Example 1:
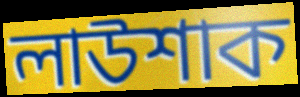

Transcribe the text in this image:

লাউশাক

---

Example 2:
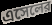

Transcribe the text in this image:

এসেলের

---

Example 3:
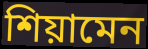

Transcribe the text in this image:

শিয়ামেন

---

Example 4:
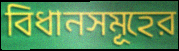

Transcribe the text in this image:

বিধানসমূহের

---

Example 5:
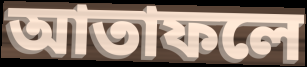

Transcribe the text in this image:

আতাফলে